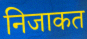
निजाकत